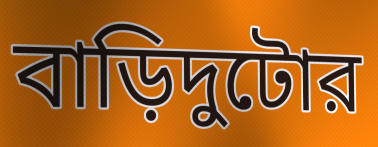
বাড়িদুটোর